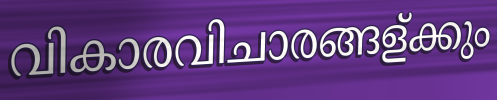
വികാരവിചാരങ്ങള്ക്കും